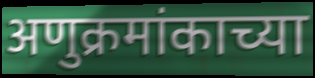
अणुक्रमांकाच्या